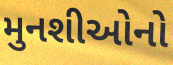
મુનશીઓનો